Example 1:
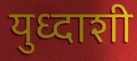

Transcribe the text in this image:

युध्दाशी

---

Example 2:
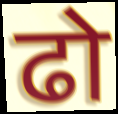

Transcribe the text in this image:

ढो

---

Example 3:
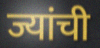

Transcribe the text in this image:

ज्यांची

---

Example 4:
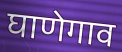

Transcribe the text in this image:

घाणेगाव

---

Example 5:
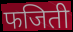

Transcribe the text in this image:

फजिती